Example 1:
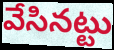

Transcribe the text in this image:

వేసినట్టు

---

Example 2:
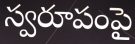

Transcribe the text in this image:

స్వరూపంపై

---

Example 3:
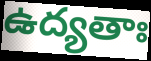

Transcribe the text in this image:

ఉద్యతాః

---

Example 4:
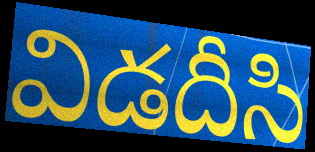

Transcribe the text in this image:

విడదీసి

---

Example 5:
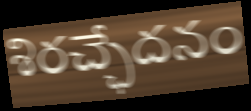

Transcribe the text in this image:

శిరచ్ఛేదనం